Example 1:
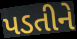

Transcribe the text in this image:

પડતીને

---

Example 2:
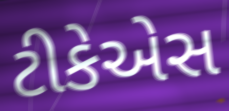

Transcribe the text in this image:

ટીકેએસ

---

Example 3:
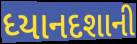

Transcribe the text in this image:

ધ્યાનદશાની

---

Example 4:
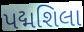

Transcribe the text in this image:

પદ્મશિલા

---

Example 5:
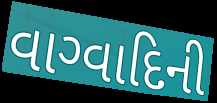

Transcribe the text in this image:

વાગ્વાદિની